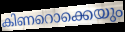
കിണറൊക്കെയും